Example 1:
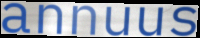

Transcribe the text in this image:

annuus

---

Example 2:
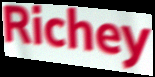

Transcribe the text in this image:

Richey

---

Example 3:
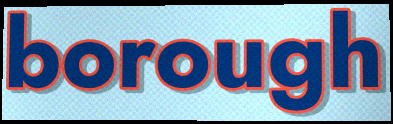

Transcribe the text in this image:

borough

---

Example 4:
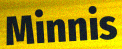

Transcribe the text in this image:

Minnis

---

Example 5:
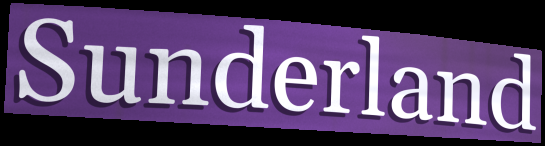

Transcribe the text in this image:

Sunderland